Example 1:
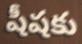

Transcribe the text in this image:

షీషకు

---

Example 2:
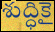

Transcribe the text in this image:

శుద్ధికై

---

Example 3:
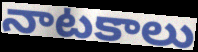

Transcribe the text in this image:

నాటకాలు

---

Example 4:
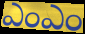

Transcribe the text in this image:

ఎంఎం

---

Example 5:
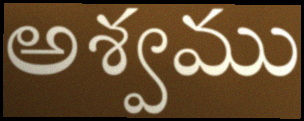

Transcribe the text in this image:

అశ్వము